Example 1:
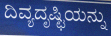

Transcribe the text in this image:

ದಿವ್ಯದೃಷ್ಟಿಯನ್ನು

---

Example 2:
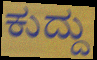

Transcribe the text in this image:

ಕುದ್ದು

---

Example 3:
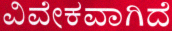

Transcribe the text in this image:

ವಿವೇಕವಾಗಿದೆ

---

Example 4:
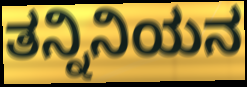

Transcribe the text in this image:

ತನ್ನಿನಿಯನ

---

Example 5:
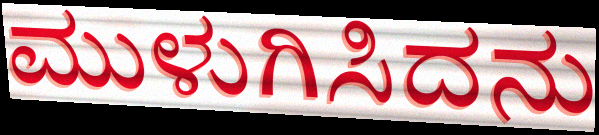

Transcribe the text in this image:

ಮುಳುಗಿಸಿದನು